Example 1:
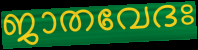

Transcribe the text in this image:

ജാതവേദഃ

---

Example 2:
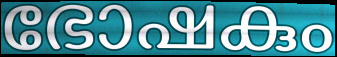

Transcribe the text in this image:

ഭോഷകും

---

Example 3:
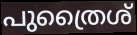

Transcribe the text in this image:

പുത്രൈശ്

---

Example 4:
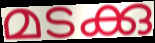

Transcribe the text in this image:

മടക്കു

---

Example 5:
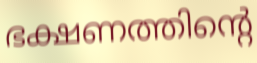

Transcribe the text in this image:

ഭക്ഷണത്തിന്റെ